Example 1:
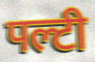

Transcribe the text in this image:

पल्टी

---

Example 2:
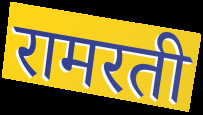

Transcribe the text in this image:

रामरती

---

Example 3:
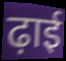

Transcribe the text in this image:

ढ़ाई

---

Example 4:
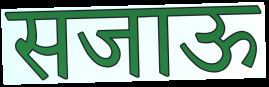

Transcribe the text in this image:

सजाऊ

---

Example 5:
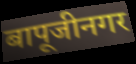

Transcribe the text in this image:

बापूजीनगर